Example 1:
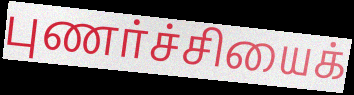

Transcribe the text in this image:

புணர்ச்சியைக்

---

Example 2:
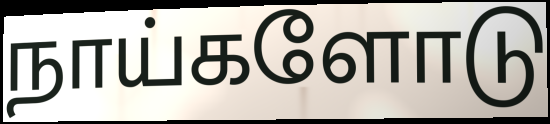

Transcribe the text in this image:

நாய்களோடு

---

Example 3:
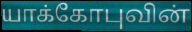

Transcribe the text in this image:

யாக்கோபுவின்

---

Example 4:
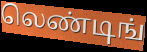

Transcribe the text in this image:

லெண்டிங்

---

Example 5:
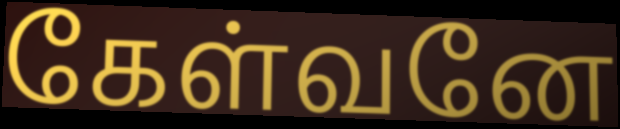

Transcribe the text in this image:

கேள்வனே